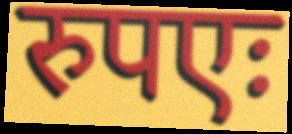
रुपएः